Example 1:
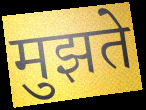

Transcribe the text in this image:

मुझते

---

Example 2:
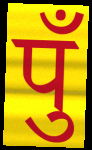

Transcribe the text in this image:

पुँ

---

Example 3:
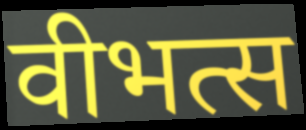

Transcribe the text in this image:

वीभत्स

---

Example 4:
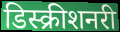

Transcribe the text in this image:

डिस्क्रीशनरी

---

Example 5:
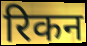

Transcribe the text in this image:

रिकन